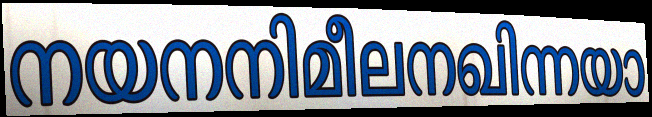
നയനനിമീലനഖിന്നയാ